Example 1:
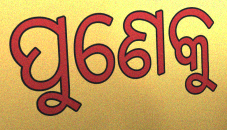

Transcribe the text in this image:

ପୁଣେକୁ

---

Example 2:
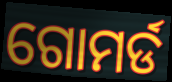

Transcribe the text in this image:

ଗୋମର୍ଡ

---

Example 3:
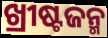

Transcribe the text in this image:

ଖ୍ରୀଷ୍ଟଜନ୍ମ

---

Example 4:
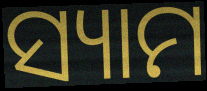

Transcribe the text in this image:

ସ୍ୟାମ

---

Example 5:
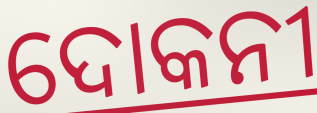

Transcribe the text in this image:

ଦୋକନୀ